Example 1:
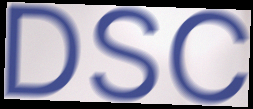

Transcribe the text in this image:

DSC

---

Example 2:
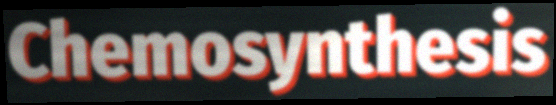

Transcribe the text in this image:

Chemosynthesis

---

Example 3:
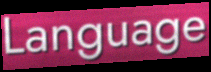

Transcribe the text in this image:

Language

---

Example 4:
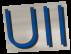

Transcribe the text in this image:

UII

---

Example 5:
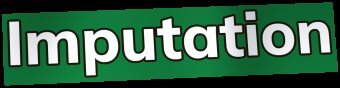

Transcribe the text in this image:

Imputation